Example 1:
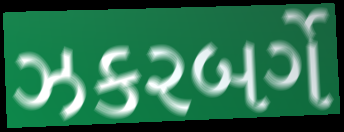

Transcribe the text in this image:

ઝકરબર્ગે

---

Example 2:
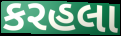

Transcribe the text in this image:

કરહલા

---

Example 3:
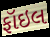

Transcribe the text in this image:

ફૉઇલ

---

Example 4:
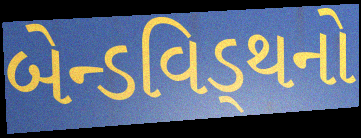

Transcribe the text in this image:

બેન્ડવિડ્થનો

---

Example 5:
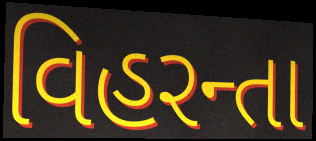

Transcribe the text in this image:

વિહરન્તા